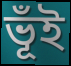
ভূঁই